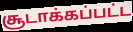
சூடாக்கப்பட்ட